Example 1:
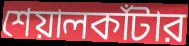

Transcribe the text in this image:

শেয়ালকাঁটার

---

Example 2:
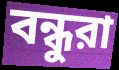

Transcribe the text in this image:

বন্ধুরা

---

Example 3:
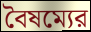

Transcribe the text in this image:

বৈষম্যের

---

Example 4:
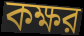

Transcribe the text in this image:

কক্ষর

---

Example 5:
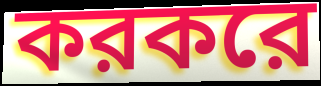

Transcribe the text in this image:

করকরে